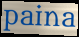
paina